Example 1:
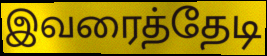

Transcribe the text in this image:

இவரைத்தேடி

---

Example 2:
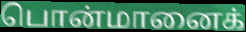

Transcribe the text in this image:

பொன்மானைக்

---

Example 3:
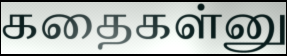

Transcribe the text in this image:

கதைகள்னு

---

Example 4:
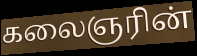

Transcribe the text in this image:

கலைஞரின்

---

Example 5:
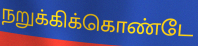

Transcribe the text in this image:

நறுக்கிக்கொண்டே